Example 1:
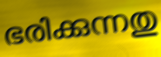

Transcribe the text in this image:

ഭരിക്കുന്നതു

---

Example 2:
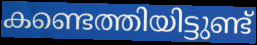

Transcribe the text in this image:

കണ്ടെത്തിയിട്ടുണ്ട്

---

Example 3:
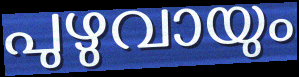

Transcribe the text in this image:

പുഴുവായും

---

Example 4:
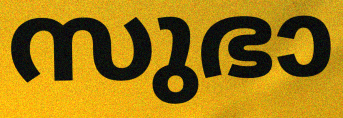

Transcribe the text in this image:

സുഭാ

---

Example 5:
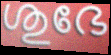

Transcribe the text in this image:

ശുഭേ